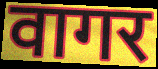
वागर